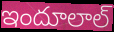
ఇందూలాల్